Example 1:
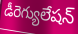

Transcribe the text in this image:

డీరెగ్యులేషన్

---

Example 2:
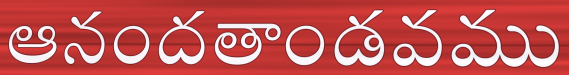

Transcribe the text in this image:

ఆనందతాండవము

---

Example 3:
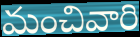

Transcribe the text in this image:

మంచివారి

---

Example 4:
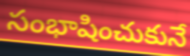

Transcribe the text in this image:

సంభాషించుకునే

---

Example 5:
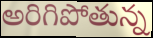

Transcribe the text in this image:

అరిగిపోతున్న